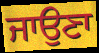
ਜਾਉਣਾ